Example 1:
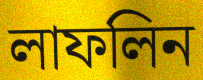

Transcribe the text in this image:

লাফলিন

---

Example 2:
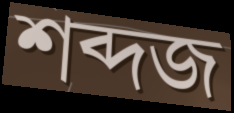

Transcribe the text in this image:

শব্দজ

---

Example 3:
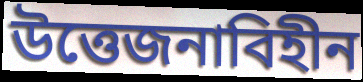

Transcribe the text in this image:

উত্তেজনাবিহীন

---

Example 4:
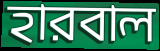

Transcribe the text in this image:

হারবাল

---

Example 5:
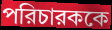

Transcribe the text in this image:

পরিচারককে